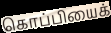
கொப்பியைக்